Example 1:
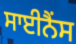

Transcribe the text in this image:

ਸਾਈਨੈਂਸ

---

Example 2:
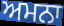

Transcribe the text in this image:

ਅਮਨਾ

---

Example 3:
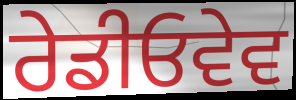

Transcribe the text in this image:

ਰੇਡੀਓਵੇਵ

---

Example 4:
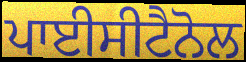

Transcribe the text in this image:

ਪਾਈਸੀਟੈਨੋਲ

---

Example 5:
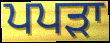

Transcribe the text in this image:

ਪਪੜਾ